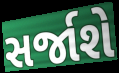
સર્જાશે